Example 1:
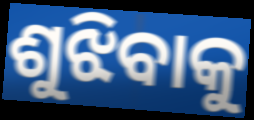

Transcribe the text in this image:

ଶୁଝିବାକୁ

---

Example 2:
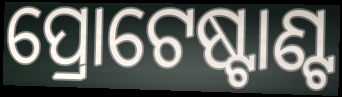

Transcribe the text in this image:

ପ୍ରୋଟେଷ୍ଟାଣ୍ଟ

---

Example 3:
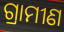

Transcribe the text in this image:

ଗ୍ରାମୀଣ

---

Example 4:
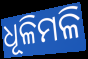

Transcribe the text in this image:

ଧୂଳିମଳି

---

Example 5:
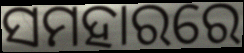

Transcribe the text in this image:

ସମହାରରେ